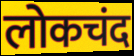
लोकचंद